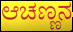
ಆಚಣ್ಣನ